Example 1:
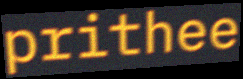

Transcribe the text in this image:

prithee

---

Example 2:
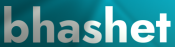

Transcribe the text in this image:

bhashet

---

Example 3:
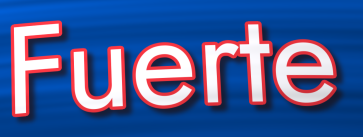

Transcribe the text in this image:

Fuerte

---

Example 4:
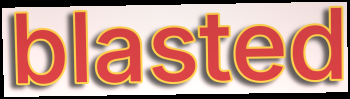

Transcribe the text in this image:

blasted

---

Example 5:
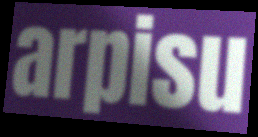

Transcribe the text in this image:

arpisu